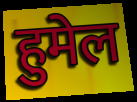
हुमेल